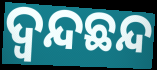
ଦ୍ୱନ୍ଦଛନ୍ଦ